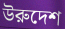
উরুদেশ